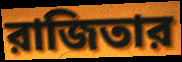
রাজিতার